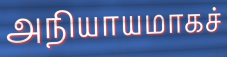
அநியாயமாகச்